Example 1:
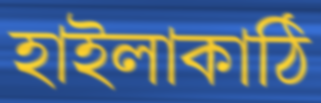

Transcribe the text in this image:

হাইলাকাঠি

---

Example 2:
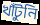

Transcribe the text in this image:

খাঁটুনি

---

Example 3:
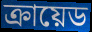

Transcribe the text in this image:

ক্রায়েড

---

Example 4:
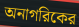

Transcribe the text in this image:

অনাগরিকের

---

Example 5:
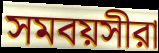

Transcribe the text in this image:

সমবয়সীরা